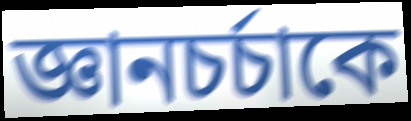
জ্ঞানচর্চাকে